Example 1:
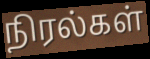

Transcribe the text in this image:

நிரல்கள்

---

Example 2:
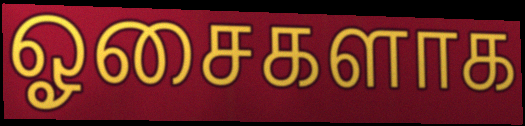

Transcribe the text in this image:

ஓசைகளாக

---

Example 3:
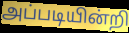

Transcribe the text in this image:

அப்படியின்றி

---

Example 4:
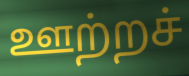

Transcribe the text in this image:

ஊற்றச்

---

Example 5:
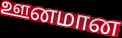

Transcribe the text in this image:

ஊனமான